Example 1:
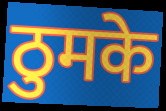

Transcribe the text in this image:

ठुमके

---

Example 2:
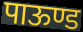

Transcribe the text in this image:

पाऊण्ड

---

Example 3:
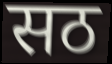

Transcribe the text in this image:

सठ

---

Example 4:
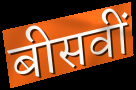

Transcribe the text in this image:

बीसवीं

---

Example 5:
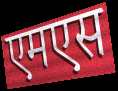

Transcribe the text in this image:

एमएस